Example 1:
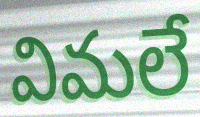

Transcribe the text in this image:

విమలే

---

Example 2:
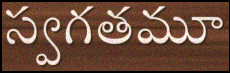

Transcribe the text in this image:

స్వగతమూ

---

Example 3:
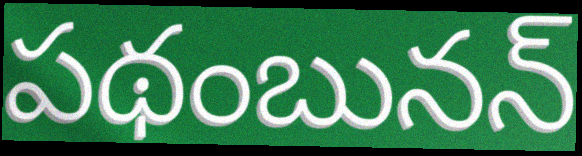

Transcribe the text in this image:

పథంబునన్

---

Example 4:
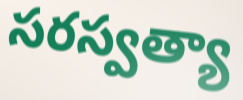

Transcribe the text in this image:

సరస్వత్యా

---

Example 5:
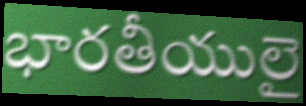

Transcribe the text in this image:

భారతీయులై